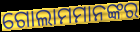
ଗୋଲାମମାନଙ୍କର